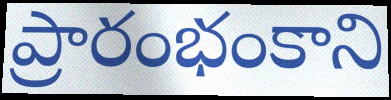
ప్రారంభంకాని